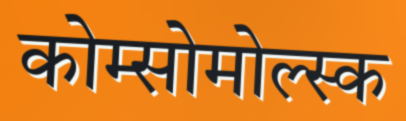
कोम्सोमोल्स्क